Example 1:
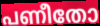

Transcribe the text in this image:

പണീതോ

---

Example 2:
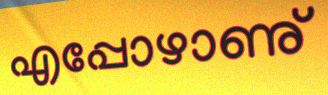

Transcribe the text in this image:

എപ്പോഴാണു്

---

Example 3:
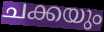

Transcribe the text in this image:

ചക്കയും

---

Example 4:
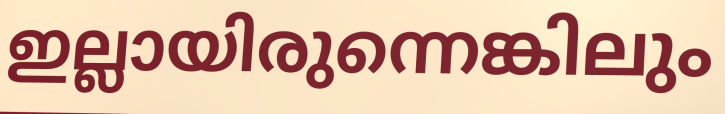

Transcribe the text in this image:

ഇല്ലായിരുന്നെങ്കിലും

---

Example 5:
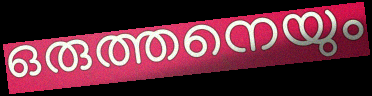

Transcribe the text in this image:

ഒരുത്തനെയും